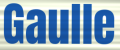
Gaulle